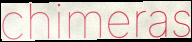
chimeras